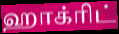
ஹாக்ரிட்